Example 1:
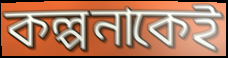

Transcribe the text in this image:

কল্পনাকেই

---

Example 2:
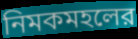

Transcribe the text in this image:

নিমকমহলের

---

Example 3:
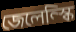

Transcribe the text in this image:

জেলেন্স্কি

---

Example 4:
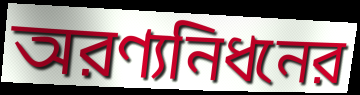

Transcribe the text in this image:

অরণ্যনিধনের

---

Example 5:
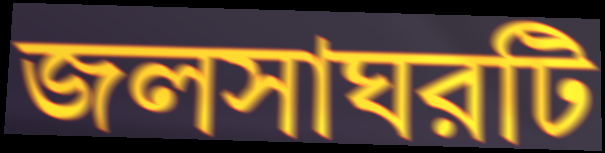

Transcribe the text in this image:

জলসাঘরটি